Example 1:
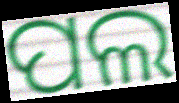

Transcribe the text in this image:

ପଲ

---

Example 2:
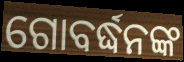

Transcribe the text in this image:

ଗୋବର୍ଦ୍ଧନଙ୍କ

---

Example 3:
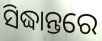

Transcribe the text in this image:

ସିଦ୍ଧାନ୍ତରେ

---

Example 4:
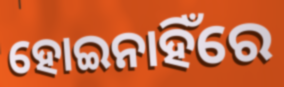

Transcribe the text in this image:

ହୋଇନାହିଁରେ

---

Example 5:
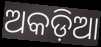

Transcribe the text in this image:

ଅକଡ଼ିଆ